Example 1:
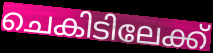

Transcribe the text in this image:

ചെകിടിലേക്ക്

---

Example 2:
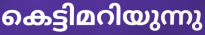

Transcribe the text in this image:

കെട്ടിമറിയുന്നു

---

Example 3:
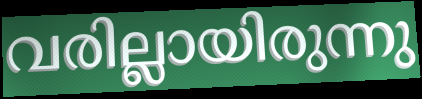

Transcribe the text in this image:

വരില്ലായിരുന്നു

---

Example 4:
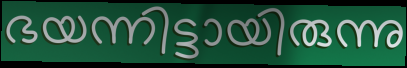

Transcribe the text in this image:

ഭയന്നിട്ടായിരുന്നു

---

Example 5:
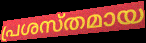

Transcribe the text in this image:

പ്രശസ്തമായ